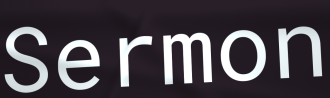
Sermon